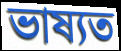
ভাষ্যত